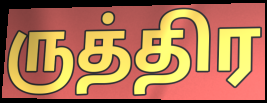
ருத்திர